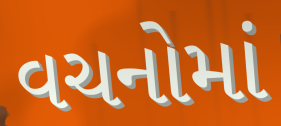
વચનોમાં